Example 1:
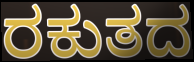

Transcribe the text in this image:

ರಕುತದ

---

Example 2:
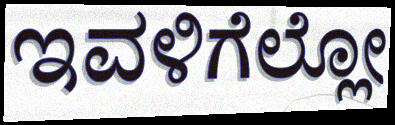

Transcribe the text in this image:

ಇವಳಿಗೆಲ್ಲೋ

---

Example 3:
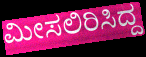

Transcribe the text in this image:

ಮೀಸಲಿರಿಸಿದ್ದ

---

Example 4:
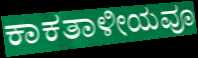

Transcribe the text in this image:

ಕಾಕತಾಳೀಯವೂ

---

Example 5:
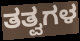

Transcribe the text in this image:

ತತ್ವಗಳ